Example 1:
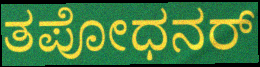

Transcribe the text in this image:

ತಪೋಧನರ್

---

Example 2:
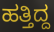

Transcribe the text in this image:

ಹತ್ತಿದ್ದ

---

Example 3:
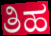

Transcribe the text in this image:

ತಿಹ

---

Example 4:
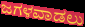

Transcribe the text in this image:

ಜಗಳವಾಡಲು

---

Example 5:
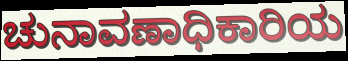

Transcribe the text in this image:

ಚುನಾವಣಾಧಿಕಾರಿಯ